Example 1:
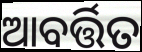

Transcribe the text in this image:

ଆବର୍ତ୍ତିତ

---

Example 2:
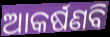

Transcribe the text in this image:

ଆକର୍ଷଣବି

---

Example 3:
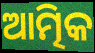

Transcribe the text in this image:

ଆତ୍ମିକ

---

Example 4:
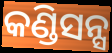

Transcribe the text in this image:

କଣ୍ଡିସନ୍ସ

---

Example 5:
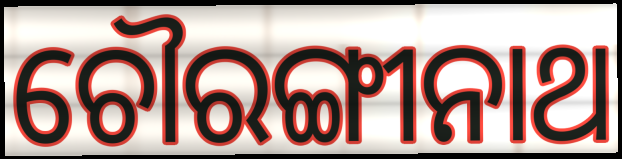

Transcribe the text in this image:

ଚୌରଙ୍ଗୀନାଥ